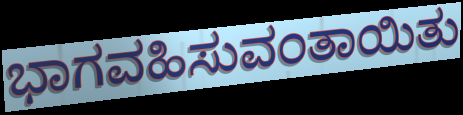
ಭಾಗವಹಿಸುವಂತಾಯಿತು